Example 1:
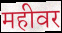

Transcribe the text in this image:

महीवर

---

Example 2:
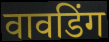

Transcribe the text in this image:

वावडिंग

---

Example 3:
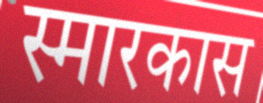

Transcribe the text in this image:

स्मारकास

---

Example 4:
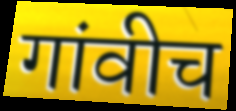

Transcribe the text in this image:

गांवीच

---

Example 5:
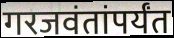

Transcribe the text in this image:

गरजवंतांपर्यंत